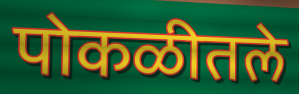
पोकळीतले